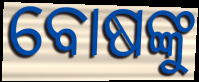
ବୋଷଙ୍କୁ